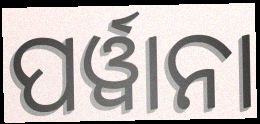
ପର୍ୱାନା